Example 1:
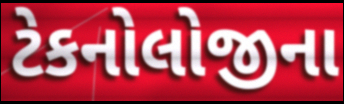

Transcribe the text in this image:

ટેકનોલોજીના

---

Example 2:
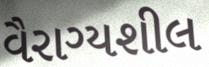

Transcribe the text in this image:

વૈરાગ્યશીલ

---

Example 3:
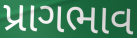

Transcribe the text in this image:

પ્રાગભાવ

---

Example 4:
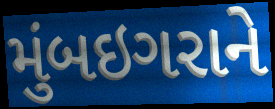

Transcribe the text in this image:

મુંબઇગરાને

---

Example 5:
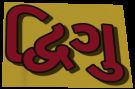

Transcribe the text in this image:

દ્વિગુ